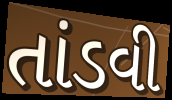
તાંડવી